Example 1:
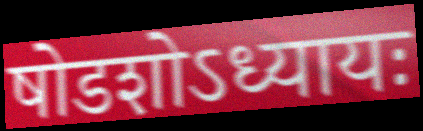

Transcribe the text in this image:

षोडशोऽध्यायः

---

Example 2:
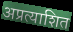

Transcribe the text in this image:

अप्रत्याशित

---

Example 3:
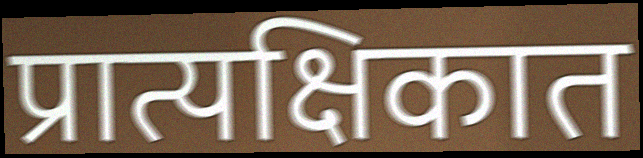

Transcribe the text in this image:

प्रात्यक्षिकात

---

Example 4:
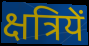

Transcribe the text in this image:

क्षत्रियें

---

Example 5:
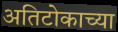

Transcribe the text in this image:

अतिटोकाच्या